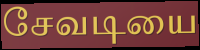
சேவடியை